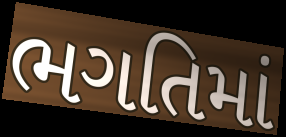
ભગતિમાં